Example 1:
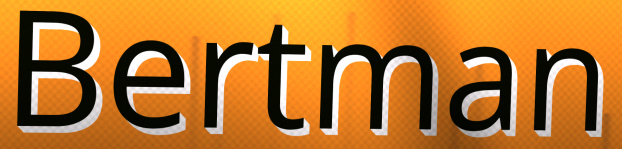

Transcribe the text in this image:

Bertman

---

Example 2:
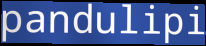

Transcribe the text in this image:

pandulipi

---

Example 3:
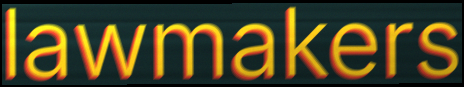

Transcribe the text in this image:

lawmakers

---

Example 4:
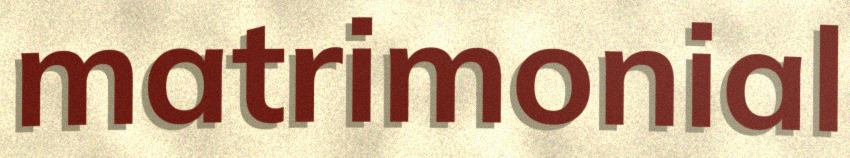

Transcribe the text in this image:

matrimonial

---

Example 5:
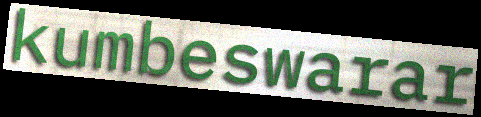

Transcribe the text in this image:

kumbeswarar